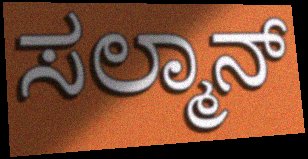
ಸಲ್ಮಾನ್